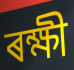
ৰক্ষী